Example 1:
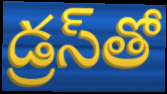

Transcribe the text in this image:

డ్రస్‌తో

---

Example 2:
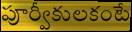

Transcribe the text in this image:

పూర్వీకులకంటే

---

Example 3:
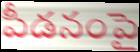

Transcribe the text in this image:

పీడనంపై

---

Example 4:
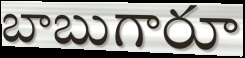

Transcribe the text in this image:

బాబుగారూ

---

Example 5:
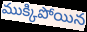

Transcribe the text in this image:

ముక్కిపోయిన